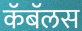
कॅबॅलस